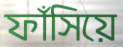
ফাঁসিয়ে